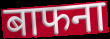
बाफना